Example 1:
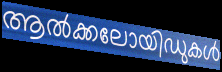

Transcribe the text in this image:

ആൽക്കലോയിഡുകൾ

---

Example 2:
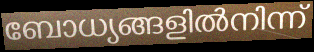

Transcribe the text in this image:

ബോധ്യങ്ങളിൽനിന്ന്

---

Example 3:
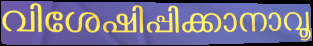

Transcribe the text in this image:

വിശേഷിപ്പിക്കാനാവൂ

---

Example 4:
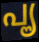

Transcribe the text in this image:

പൄ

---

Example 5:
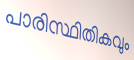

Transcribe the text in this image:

പാരിസ്ഥിതികവും